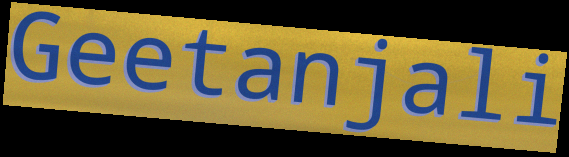
Geetanjali